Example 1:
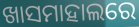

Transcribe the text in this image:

ଖାସମାହାଲରେ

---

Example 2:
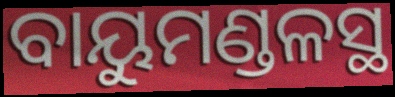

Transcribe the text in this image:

ବାୟୁମଣ୍ଡଳସ୍ଥ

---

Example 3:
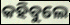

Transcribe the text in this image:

କହିବୁଲେ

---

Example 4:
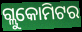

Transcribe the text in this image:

ଗ୍ଲୁକୋମିଟର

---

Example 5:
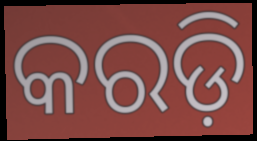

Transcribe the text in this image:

କରଡ଼ି